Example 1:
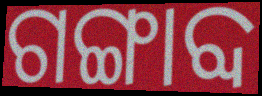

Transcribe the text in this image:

ଗଙ୍ଗାବ୍ଦ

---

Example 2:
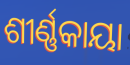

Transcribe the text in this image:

ଶୀର୍ଣ୍ଣକାୟା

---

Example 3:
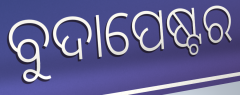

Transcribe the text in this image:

ବୁଦାପେଷ୍ଟର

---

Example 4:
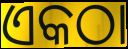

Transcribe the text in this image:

ଏକଠା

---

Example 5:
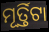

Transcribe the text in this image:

ମୂର୍ତ୍ତିଟା